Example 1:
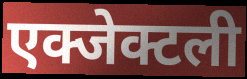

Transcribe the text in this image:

एक्जेक्टली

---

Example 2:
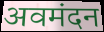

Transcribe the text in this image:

अवमंदन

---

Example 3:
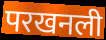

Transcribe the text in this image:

परखनली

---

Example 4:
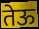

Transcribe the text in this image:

तेऊ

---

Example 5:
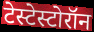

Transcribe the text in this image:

टेस्टेस्टोरॉन